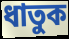
ধাতুক